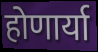
होणार्या